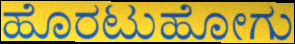
ಹೊರಟುಹೋಗು